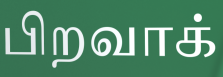
பிறவாக்